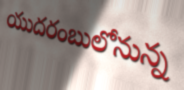
యుదరంబులోనున్న